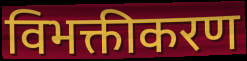
विभक्तीकरण